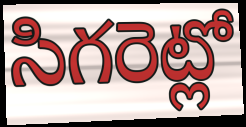
సిగరెట్లో